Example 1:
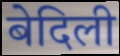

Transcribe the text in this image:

बेदिली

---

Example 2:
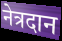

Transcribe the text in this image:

नेत्रदान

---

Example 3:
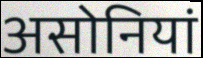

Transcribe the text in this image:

असोनियां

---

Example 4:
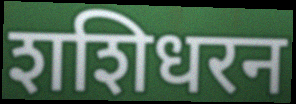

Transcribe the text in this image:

शशिधरन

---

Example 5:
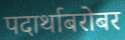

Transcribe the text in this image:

पदार्थाबरोबर